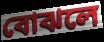
বোঝলে